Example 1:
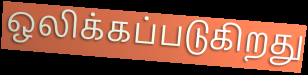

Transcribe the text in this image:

ஒலிக்கப்படுகிறது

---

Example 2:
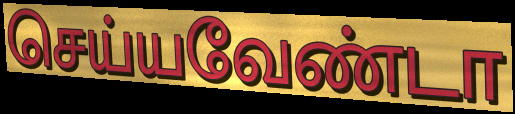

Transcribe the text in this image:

செய்யவேண்டா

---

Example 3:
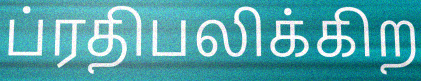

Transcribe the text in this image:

ப்ரதிபலிக்கிற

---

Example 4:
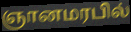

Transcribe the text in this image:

ஞானமரபில்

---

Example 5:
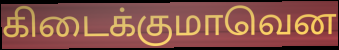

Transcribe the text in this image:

கிடைக்குமாவென